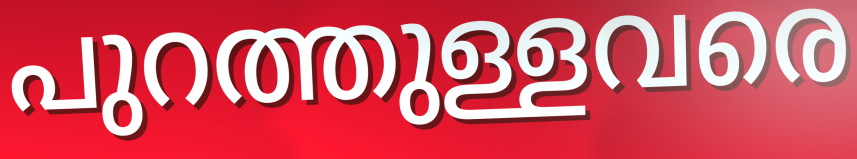
പുറത്തുള്ളവരെ